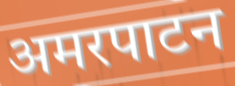
अमरपाटन